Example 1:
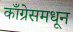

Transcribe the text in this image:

काँग्रेसमधून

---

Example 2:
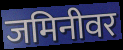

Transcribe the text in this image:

जमिनीवर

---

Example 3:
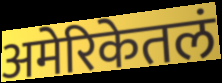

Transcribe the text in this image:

अमेरिकेतलं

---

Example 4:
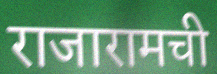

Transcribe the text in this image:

राजारामची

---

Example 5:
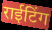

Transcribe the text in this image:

राईटिंग